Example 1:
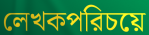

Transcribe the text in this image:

লেখকপরিচয়ে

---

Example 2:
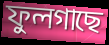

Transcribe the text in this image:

ফুলগাছে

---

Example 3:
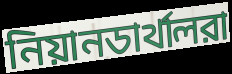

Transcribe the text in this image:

নিয়ানডার্থালরা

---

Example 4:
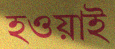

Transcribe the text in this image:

হওয়াই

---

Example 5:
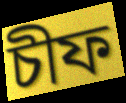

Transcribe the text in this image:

চীফ